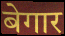
बेगार